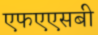
एफएएसबी